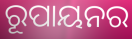
ରୂପାୟନର